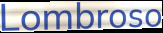
Lombroso